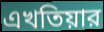
এখতিয়ার